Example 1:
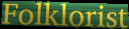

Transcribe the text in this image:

Folklorist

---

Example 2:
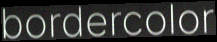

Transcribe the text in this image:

bordercolor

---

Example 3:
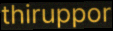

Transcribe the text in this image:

thiruppor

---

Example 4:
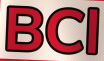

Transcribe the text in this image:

BCl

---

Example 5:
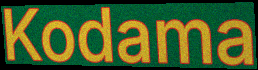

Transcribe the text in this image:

Kodama